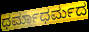
ಧರ್ಮಾಧರ್ಮದ